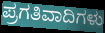
ಪ್ರಗತಿವಾದಿಗಳು